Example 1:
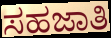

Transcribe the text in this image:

ಸಹಜಾತಿ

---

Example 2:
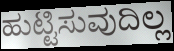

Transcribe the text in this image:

ಹುಟ್ಟಿಸುವುದಿಲ್ಲ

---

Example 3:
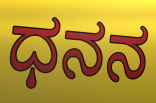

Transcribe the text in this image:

ಧನನ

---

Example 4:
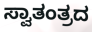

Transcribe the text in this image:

ಸ್ವಾತಂತ್ರದ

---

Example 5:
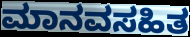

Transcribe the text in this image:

ಮಾನವಸಹಿತ